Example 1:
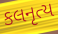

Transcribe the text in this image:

કલનૃત્ય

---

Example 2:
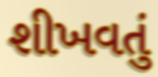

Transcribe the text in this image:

શીખવતું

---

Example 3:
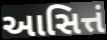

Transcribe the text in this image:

આસિત્તં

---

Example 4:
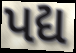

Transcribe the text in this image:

પદ્ય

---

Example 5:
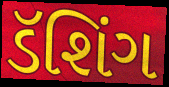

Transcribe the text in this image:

ડૅશિંગ